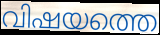
വിഷയത്തെ